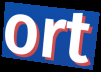
ort